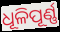
ଧୂଳିପୂର୍ଣ୍ଣ